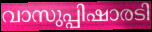
വാസുപ്പിഷാരടി